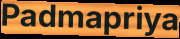
Padmapriya